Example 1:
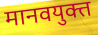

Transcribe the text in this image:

मानवयुक्त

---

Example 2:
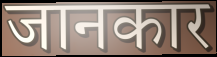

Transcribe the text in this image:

जानकार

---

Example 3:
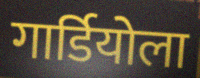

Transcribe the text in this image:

गार्डियोला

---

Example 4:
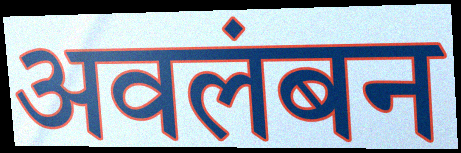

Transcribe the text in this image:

अवलंबन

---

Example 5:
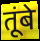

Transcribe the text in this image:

तूंबे